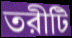
তরীটি